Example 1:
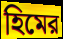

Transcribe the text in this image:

হিমের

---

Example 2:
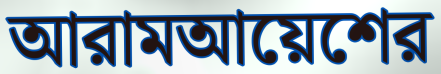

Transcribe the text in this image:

আরামআয়েশের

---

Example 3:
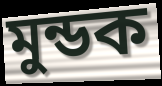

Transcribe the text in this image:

মুন্ডক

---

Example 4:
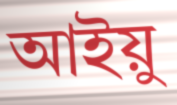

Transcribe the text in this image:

আইয়ু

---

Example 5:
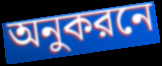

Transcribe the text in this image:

অনুকরনে